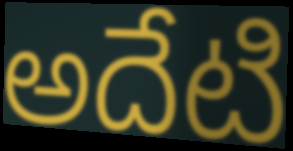
అదేటి